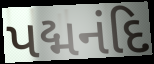
પદ્મનંદિ